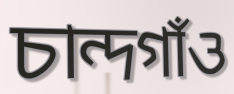
চান্দগাঁও